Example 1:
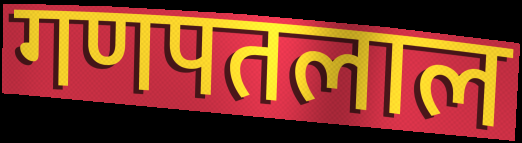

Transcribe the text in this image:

गणपतलाल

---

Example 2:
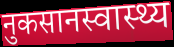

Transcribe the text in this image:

नुकसानस्वास्थ्य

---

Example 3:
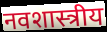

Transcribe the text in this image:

नवशास्त्रीय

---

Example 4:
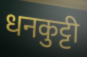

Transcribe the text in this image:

धनकुट्टी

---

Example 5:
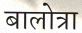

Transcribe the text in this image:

बालोत्रा